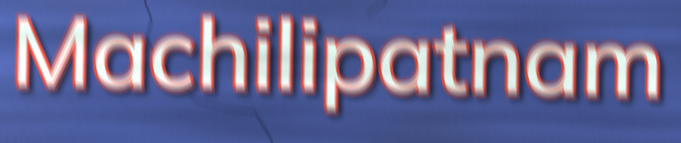
Machilipatnam